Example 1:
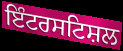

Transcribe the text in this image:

ਇੰਟਰਸਟਿਸ਼ਲ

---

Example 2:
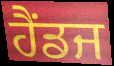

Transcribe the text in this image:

ਹੈਂਡਜ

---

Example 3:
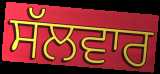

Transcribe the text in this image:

ਸੱਲਵਾਰ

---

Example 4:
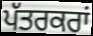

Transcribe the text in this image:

ਪੱਤਰਕਰਾਂ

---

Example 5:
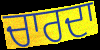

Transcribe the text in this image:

ਚਾਰਦਾ